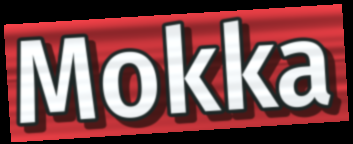
Mokka